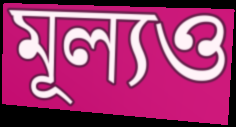
মূল্যও